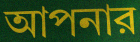
আপনার